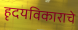
हृदयविकाराचे